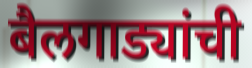
बैलगाड्यांची